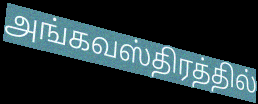
அங்கவஸ்திரத்தில்